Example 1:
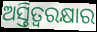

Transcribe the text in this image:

ଅସ୍ତିତ୍ୱରକ୍ଷାର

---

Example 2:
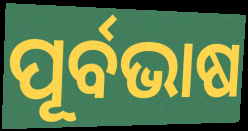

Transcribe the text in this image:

ପୂର୍ବଭାଷ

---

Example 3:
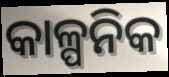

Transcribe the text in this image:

କାଳ୍ପନିକ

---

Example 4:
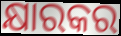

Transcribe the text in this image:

କ୍ଷାରକର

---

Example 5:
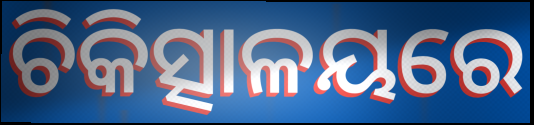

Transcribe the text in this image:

ଚିକିତ୍ସାଳୟରେ